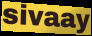
sivaay